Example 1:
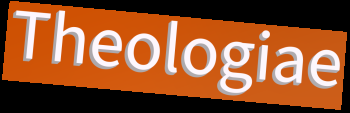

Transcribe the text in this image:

Theologiae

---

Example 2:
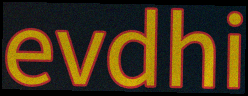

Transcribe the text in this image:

evdhi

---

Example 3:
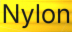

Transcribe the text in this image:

Nylon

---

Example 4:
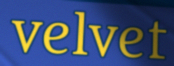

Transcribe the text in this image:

velvet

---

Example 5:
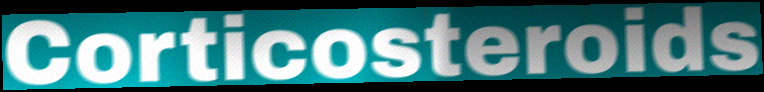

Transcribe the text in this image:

Corticosteroids